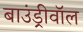
बाउंड्रीवॉल